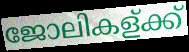
ജോലികള്ക്ക്